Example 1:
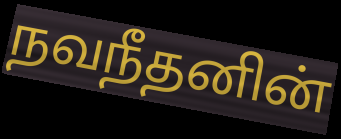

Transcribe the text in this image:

நவநீதனின்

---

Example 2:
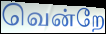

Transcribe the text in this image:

வென்றே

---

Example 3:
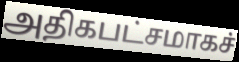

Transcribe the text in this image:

அதிகபட்சமாகச்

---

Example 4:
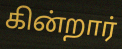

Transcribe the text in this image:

கின்றார்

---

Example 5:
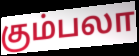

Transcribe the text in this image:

கும்பலா